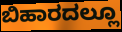
ಬಿಹಾರದಲ್ಲೂ